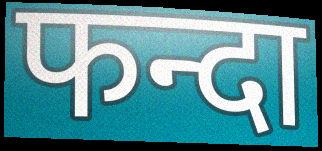
फन्दा